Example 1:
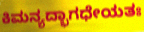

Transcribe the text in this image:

ಕಿಮನ್ಯದ್ಭಾಗಧೇಯತಃ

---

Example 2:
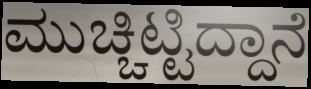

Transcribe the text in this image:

ಮುಚ್ಚಿಟ್ಟಿದ್ದಾನೆ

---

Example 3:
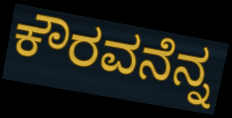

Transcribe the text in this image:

ಕೌರವನೆನ್ನ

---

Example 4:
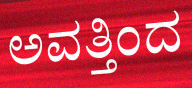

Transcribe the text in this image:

ಅವತ್ತಿಂದ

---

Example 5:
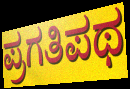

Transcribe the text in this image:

ಪ್ರಗತಿಪಥ